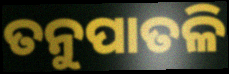
ତନୁପାତଳି